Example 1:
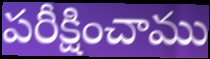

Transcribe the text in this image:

పరీక్షించాము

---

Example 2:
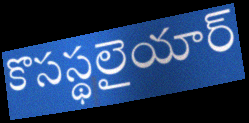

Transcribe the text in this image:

కొసస్థలైయార్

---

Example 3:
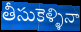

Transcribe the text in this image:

తీసుకెళ్ళినా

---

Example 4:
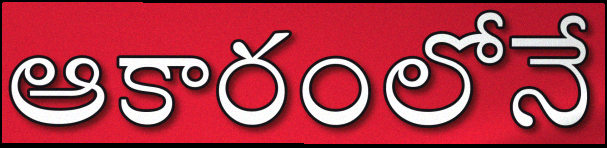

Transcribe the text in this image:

ఆకారంలోనే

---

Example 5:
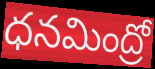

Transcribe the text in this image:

ధనమింద్రో